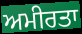
ਅਮੀਰਤਾ